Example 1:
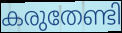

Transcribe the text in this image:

കരുതേണ്ടി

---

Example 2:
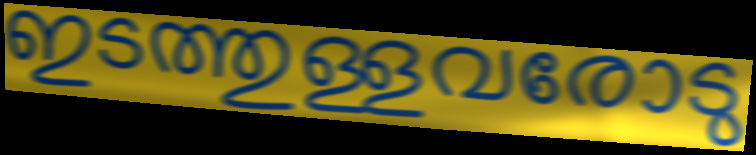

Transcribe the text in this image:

ഇടത്തുള്ളവരോടു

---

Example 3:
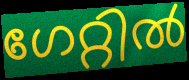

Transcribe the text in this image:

ഗേറ്റിൽ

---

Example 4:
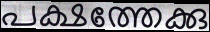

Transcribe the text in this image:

പക്ഷത്തേക്കു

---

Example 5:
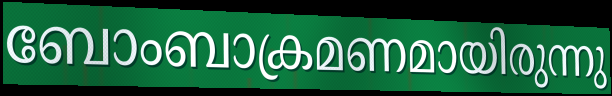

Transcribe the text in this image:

ബോംബാക്രമണമായിരുന്നു